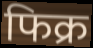
फिक्र